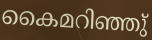
കൈമറിഞ്ഞു്